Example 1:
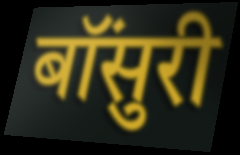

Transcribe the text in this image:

बॉंसुरी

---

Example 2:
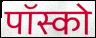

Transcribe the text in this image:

पॉस्‍को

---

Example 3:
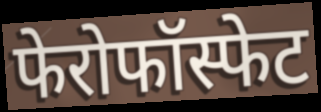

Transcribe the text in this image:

फेरोफॉस्फेट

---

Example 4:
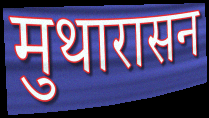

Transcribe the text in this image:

मुथारासन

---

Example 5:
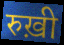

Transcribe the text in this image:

रुख़ी